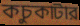
কচুকাটার